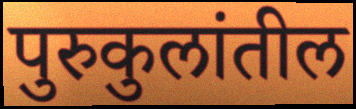
पुरुकुलांतील